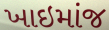
ખાઇમાંજ